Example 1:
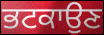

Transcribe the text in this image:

ਭਟਕਾਉਣ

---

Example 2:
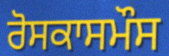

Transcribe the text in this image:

ਰੋਸਕਾਸਮੌਸ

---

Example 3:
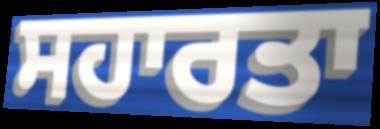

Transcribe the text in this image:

ਸਹਾਰਤਾ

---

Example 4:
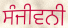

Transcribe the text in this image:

ਸੰਜੀਵਨੀ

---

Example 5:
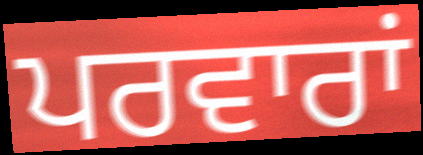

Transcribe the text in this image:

ਪਰਵਾਰਾਂ